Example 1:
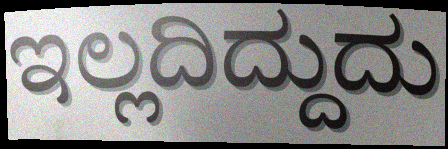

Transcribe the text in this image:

ಇಲ್ಲದಿದ್ದುದು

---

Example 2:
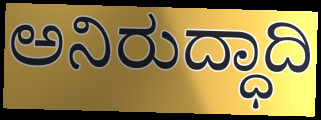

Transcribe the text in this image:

ಅನಿರುದ್ಧಾದಿ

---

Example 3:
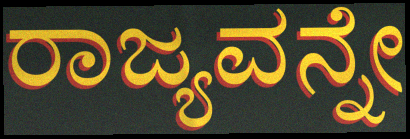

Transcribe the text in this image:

ರಾಜ್ಯವನ್ನೇ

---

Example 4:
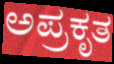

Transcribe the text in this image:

ಅಪ್ರಕೃತ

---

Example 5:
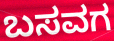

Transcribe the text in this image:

ಬಸವಗ